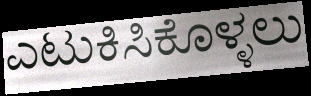
ಎಟುಕಿಸಿಕೊಳ್ಳಲು